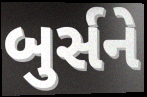
બુર્સને